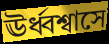
ঊর্ধ্বশ্বাসে